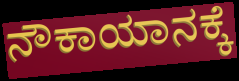
ನೌಕಾಯಾನಕ್ಕೆ